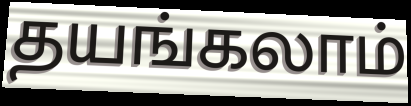
தயங்கலாம்